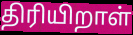
திரியிறாள்